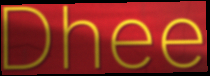
Dhee